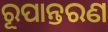
ରୂପାନ୍ତରଣ